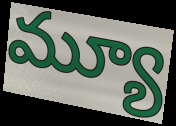
మ్యూ